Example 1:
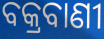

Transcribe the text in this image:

ବକ୍ରବାଣୀ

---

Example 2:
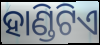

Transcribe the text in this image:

ହାଣ୍ଡିଟିଏ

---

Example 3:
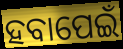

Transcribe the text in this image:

ହବାପେଇଁ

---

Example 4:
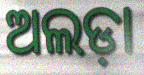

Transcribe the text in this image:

ଅଲଡ଼ା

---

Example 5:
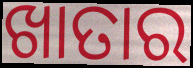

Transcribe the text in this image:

ଖାତାର